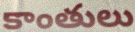
కాంతులు